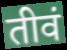
तीवं